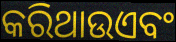
କରିଥାଉଏବଂ